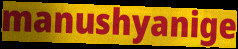
manushyanige